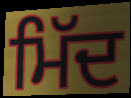
ਮਿੱਦ